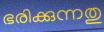
ഭരിക്കുന്നതു